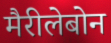
मैरीलेबोन